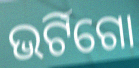
ଭର୍ଟିଗୋ